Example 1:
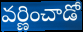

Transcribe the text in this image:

వర్ణించాడో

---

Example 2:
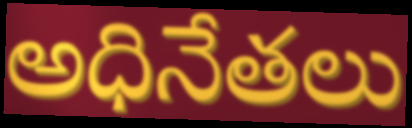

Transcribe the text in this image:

అధినేతలు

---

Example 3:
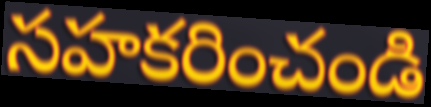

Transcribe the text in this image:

సహకరించండి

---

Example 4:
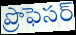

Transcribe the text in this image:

ప్రొఫెసర్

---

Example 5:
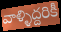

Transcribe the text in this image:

వాళ్ళిద్దరికీ